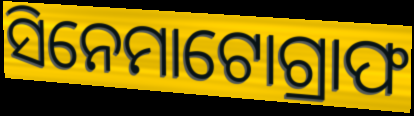
ସିନେମାଟୋଗ୍ରାଫ